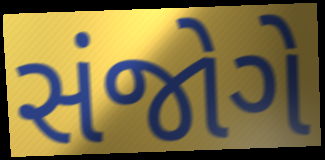
સંજોગે